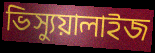
ভিস্যুয়ালাইজ